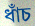
ধাঁচ